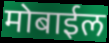
मोबाईल